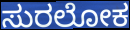
ಸುರಲೋಕ